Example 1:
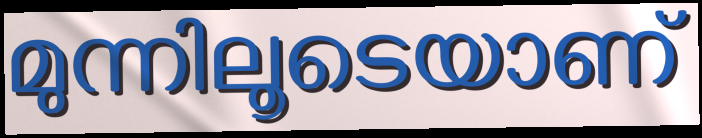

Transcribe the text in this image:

മുന്നിലൂടെയാണ്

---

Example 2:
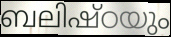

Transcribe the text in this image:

ബലിഷ്ഠയും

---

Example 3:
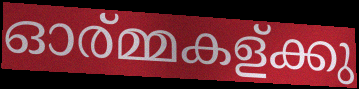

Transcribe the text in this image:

ഓര്മ്മകള്ക്കു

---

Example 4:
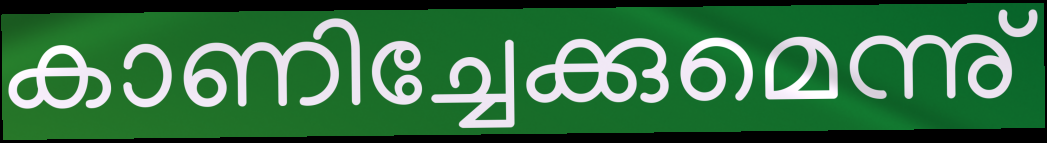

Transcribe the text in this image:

കാണിച്ചേക്കുമെന്നു്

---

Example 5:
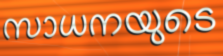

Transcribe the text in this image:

സാധനയുടെ